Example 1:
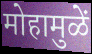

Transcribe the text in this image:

मोहामुळें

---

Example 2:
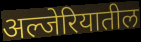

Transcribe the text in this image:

अल्जेरियातील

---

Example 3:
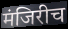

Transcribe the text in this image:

मंजिरीच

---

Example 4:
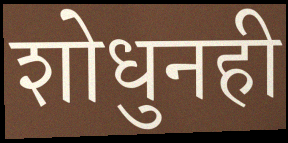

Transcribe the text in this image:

शोधुनही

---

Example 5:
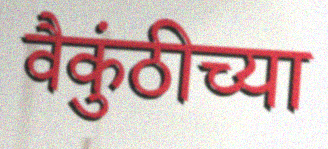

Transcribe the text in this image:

वैकुंठीच्या